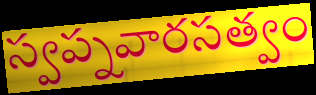
స్వప్నవారసత్వం